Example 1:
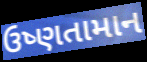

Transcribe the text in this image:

ઉષ્ણતામાન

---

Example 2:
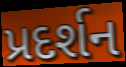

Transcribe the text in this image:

પ્રદર્શન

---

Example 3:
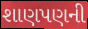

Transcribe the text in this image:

શાણપણની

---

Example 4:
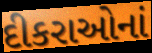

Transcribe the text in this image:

દીકરાઓનાં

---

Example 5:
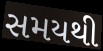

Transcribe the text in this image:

સમયથી